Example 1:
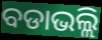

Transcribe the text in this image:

ବଡାଭଲ୍ଲି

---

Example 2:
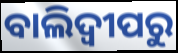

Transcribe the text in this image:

ବାଲିଦ୍ୱୀପରୁ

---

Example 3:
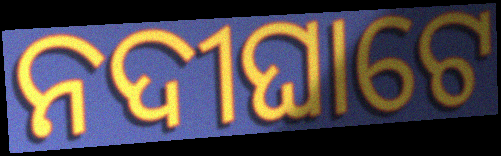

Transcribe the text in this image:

ନଦୀଘାଟେ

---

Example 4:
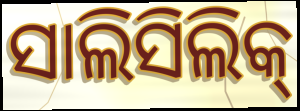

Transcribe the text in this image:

ସାଲିସିଲିକ୍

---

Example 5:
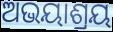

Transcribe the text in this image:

ଅଭୟାଶ୍ରୟ